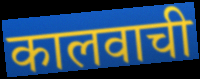
कालवाची